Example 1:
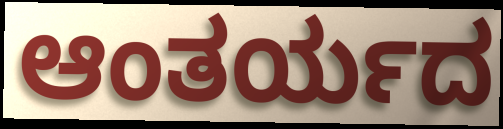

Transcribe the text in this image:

ಆಂತರ್ಯದ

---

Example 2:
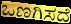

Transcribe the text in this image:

ಒಣಗಿಸದೆ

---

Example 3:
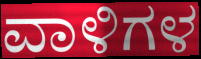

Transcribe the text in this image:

ವಾಳಿಗಳ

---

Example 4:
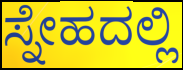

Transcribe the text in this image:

ಸ್ನೇಹದಲ್ಲಿ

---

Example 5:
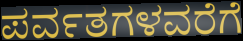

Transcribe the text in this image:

ಪರ್ವತಗಳವರೆಗೆ